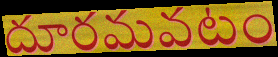
దూరమవటం